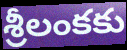
శ్రీలంకకు